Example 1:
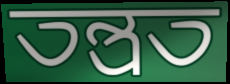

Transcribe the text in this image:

তন্ত্ৰত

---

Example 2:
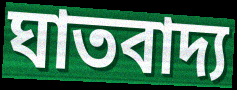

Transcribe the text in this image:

ঘাতবাদ্য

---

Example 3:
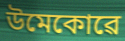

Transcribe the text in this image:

উমেকোৱে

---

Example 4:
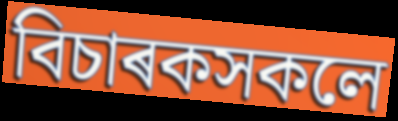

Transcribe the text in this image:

বিচাৰকসকলে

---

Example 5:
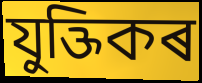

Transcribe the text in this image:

যুক্তিকৰ